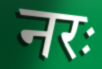
नरः